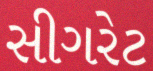
સીગરેટ